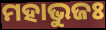
ମହାଭୁଜଃ